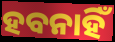
ହବନାହିଁ